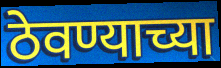
ठेवण्याच्या